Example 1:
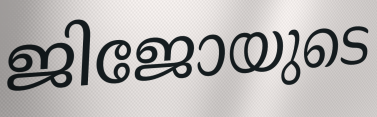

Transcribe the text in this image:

ജിജോയുടെ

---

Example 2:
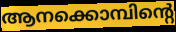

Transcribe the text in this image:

ആനക്കൊമ്പിന്റെ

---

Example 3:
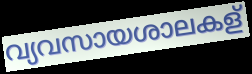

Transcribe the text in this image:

വ്യവസായശാലകള്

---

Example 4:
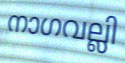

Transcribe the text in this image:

നാഗവല്ലി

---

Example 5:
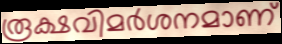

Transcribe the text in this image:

രൂക്ഷവിമർശനമാണ്